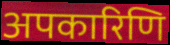
अपकारिणि